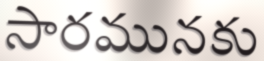
సారమునకు